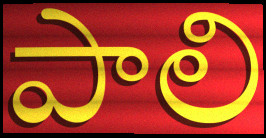
పాలి